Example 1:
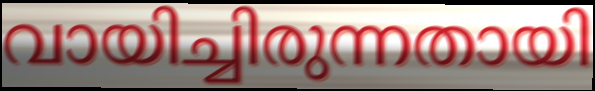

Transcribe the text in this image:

വായിച്ചിരുന്നതായി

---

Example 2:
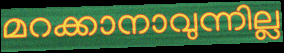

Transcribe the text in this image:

മറക്കാനാവുന്നില്ല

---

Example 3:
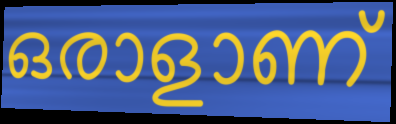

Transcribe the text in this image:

ഒരാളാണ്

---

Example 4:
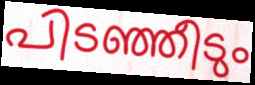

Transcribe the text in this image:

പിടഞ്ഞീടും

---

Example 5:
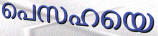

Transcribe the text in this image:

പെസഹയെ